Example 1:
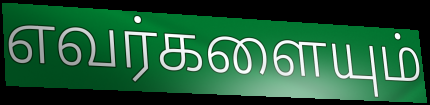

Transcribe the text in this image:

எவர்களையும்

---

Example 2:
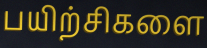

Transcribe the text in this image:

பயிற்சிகளை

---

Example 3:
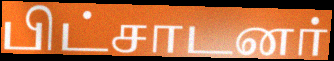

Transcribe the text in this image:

பிட்சாடனர்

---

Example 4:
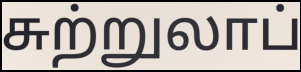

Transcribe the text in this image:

சுற்றுலாப்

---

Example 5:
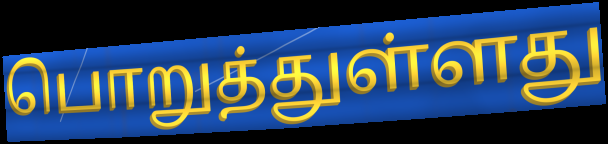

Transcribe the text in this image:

பொறுத்துள்ளது